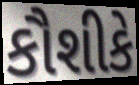
કૌશીકે